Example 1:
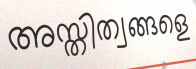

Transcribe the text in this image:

അസ്തിത്വങ്ങളെ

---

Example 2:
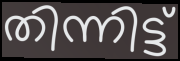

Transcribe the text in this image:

തിന്നിട്ട്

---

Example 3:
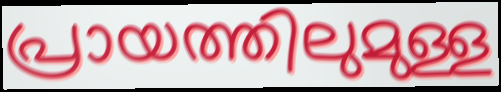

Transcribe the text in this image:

പ്രായത്തിലുമുള്ള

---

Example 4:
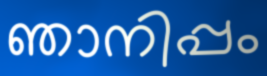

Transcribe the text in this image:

ഞാനിപ്പം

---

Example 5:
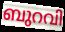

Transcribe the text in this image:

ബുറവി